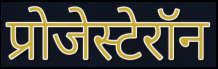
प्रोजेस्टेरॉन